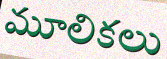
మూలికలు